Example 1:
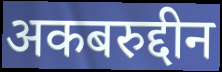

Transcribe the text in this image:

अकबरुद्दीन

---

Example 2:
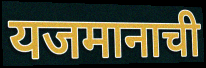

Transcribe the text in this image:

यजमानाची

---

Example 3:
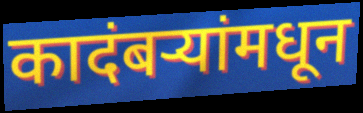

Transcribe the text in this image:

कादंबर्‍यांमधून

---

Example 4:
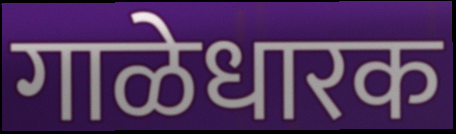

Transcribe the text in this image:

गाळेधारक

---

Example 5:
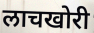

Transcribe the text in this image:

लाचखोरी